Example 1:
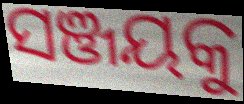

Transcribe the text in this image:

ସଞ୍ଜୟକୁ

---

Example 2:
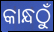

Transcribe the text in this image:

କାନ୍ଧଠୁଁ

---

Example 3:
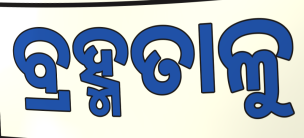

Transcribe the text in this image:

ବ୍ରହ୍ମତାଳୁ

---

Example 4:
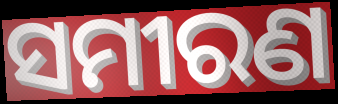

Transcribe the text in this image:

ସମୀରଣ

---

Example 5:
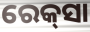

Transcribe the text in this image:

ରେକ୍‍ସା